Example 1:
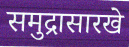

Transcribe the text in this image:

समुद्रासारखे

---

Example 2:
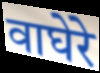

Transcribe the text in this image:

वाघेरे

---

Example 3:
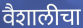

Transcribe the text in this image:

वैशालीचा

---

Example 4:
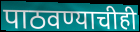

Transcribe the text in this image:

पाठवण्याचीही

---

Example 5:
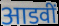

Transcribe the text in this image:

आडवीं